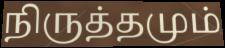
நிருத்தமும்